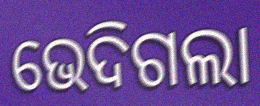
ଭେଦିଗଲା